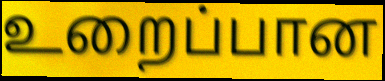
உறைப்பான